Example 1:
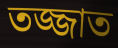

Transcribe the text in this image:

তজ্জাত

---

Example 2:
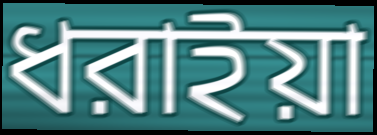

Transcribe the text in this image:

ধরাইয়া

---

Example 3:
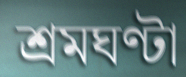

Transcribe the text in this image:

শ্রমঘণ্টা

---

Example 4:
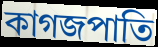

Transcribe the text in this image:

কাগজপাতি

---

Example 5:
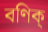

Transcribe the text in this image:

বণিক্